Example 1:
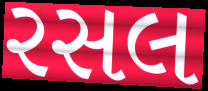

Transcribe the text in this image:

રસલ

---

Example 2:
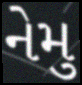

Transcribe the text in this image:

નેમુ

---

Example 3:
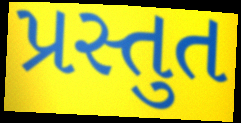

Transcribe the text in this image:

પ્રસ્તુત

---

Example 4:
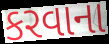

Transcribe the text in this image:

કરવાના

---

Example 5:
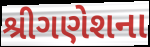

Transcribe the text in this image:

શ્રીગણેશના